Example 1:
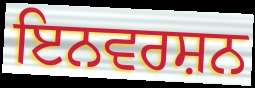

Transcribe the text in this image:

ਇਨਵਰਸ਼ਨ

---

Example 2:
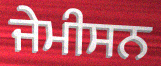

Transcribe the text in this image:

ਜੇਮੀਸਨ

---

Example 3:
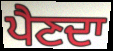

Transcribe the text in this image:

ਪੈਣਦਾ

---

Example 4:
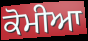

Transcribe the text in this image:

ਕੋਮੀਆ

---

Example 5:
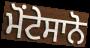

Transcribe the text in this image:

ਮੋਂਟੇਸਾਨੋ